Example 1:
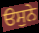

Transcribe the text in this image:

ੳਸੁਨੇ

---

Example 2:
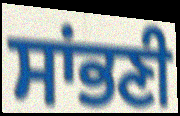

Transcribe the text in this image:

ਸਾਂਭਣੀ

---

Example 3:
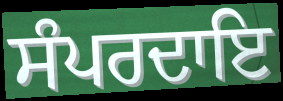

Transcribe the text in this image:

ਸੰਪਰਦਾਇ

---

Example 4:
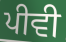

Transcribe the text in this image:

ਪੀਵੀ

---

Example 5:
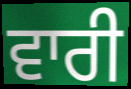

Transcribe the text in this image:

ਵਾਰੀ